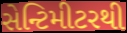
સેન્ટિમીટરથી